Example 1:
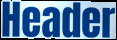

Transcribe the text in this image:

Header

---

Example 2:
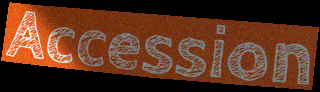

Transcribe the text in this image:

Accession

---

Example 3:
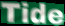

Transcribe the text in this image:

Tide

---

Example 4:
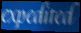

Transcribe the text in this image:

expedited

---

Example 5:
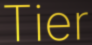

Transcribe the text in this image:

Tier